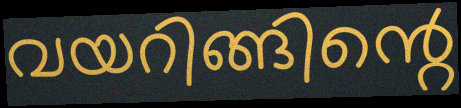
വയറിങ്ങിന്റെ